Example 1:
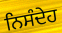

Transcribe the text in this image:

ਨਿਸੰਦੇਹ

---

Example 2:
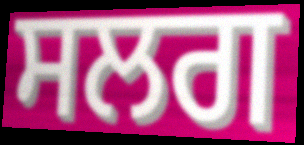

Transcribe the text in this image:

ਸਲਗ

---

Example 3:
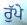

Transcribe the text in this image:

ਰੁੱਪੇ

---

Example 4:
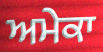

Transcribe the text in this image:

ਅਮੇਕਾ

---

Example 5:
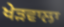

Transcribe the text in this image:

ਖੇੜਵਾਲਾ